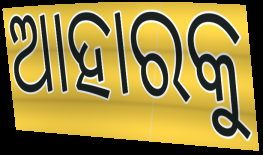
ଆହାରକୁ